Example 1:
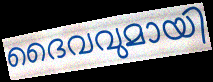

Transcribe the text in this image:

ദൈവവുമായി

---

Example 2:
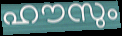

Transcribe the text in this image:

ഹൗസും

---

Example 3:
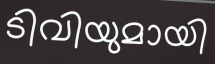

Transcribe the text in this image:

ടിവിയുമായി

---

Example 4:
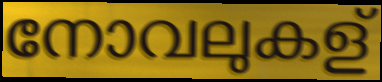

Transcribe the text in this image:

നോവലുകള്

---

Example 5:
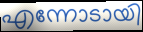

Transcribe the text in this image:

എന്നോടായി